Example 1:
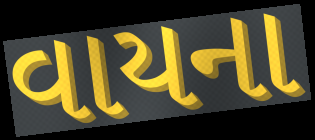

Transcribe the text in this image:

વાયના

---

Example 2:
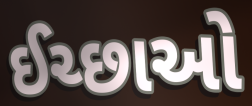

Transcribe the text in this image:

ઈચ્છાઓ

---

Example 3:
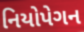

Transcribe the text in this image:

નિયોપેગન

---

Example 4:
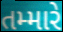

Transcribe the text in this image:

તમ્મારે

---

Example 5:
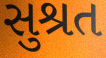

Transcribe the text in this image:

સુશ્રત